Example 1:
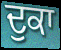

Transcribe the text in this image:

ਦੁਕਾ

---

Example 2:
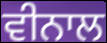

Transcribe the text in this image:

ਵੀਨਾਲ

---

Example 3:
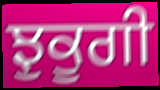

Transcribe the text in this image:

ਝੁਕੂਗੀ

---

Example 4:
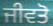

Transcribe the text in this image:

ਜੀਵਤੋ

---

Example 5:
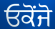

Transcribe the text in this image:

ਓਕੋਂਜੋ